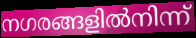
നഗരങ്ങളിൽനിന്ന്